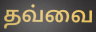
தவ்வை